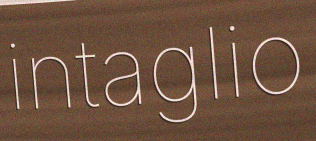
intaglio